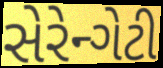
સેરેન્ગેટી